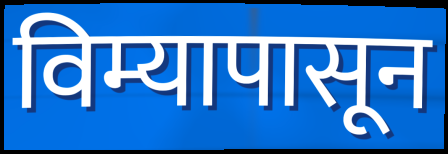
विम्यापासून